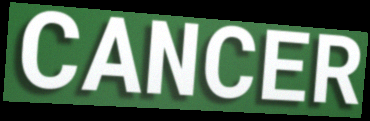
CANCER